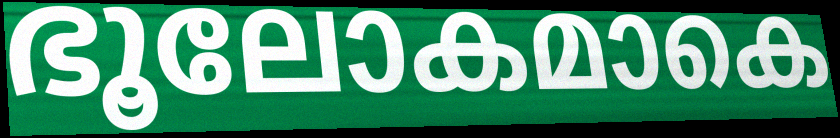
ഭൂലോകമാകെ